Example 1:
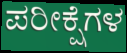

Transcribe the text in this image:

ಪರೀಕ್ಷೆಗಳ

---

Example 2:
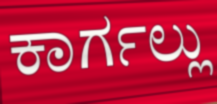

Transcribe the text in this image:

ಕಾರ್ಗಲ್ಲು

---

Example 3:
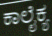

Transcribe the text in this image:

ಕಾಲೈಕ್ಯ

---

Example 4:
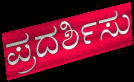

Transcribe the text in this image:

ಪ್ರದರ್ಶಿಸು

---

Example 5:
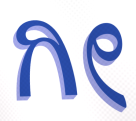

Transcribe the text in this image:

ಗೀ